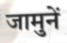
जामुनें